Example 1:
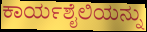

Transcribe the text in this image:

ಕಾರ್ಯಶೈಲಿಯನ್ನು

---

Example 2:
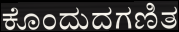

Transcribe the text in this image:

ಕೊಂದುದಗಣಿತ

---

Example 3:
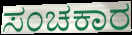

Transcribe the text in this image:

ಸಂಚಕಾರ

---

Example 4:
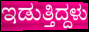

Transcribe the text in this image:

ಇಡುತ್ತಿದ್ದಳು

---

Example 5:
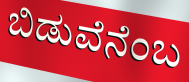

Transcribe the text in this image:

ಬಿಡುವೆನೆಂಬ